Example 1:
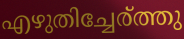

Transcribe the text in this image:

എഴുതിച്ചേര്ത്തു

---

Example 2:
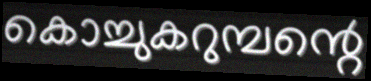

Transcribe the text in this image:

കൊച്ചുകറുമ്പന്റെ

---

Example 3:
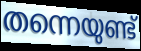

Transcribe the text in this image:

തന്നെയുണ്ട്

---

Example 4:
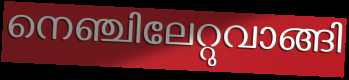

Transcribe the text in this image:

നെഞ്ചിലേറ്റുവാങ്ങി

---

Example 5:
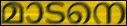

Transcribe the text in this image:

മാടനെ